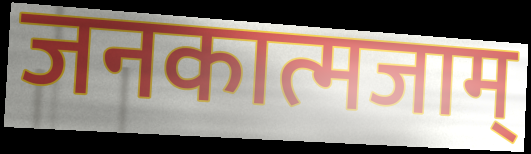
जनकात्मजाम्